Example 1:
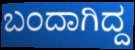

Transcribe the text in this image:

ಬಂದಾಗಿದ್ದ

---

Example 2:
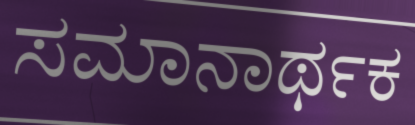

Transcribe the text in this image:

ಸಮಾನಾರ್ಥಕ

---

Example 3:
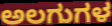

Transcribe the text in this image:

ಅಲಗುಗಳ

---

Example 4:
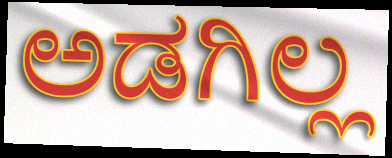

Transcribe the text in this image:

ಅಡಗಿಲ್ಲ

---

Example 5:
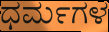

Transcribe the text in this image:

ಧರ್ಮಗಳ